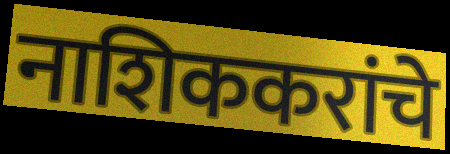
नाशिककरांचे